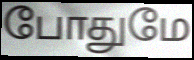
போதுமே